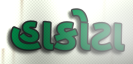
હાકોટા